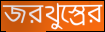
জরথুস্ত্রের